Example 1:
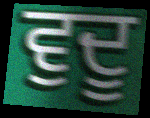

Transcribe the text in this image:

ਵੁਦੂ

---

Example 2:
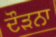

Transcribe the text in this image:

ਦੌੜਨਾ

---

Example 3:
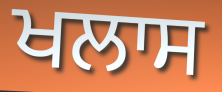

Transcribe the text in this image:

ਖਲਾਸ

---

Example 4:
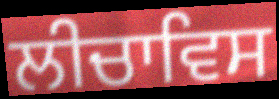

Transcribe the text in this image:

ਲੀਚਾਵਿਸ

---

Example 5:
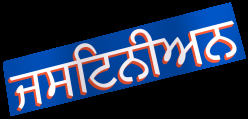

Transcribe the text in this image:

ਜਸਟਿਨੀਅਨ